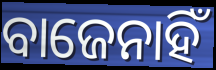
ବାଜେନାହିଁ